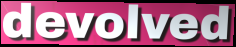
devolved